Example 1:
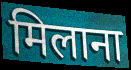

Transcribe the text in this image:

मिलाना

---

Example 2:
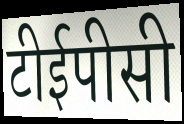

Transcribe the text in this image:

टीईपीसी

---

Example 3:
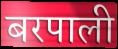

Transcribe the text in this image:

बरपाली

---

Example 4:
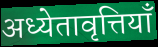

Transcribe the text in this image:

अध्येतावृत्तियाँ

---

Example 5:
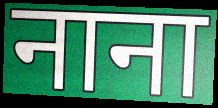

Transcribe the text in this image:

नाना